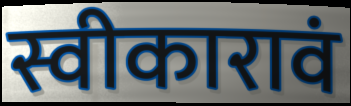
स्वीकारावं